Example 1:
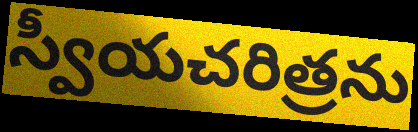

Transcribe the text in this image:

స్వీయచరిత్రను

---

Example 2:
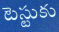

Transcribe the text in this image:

టెస్టుకు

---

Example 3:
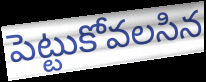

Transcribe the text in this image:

పెట్టుకోవలసిన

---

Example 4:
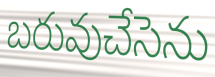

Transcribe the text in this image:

బరువుచేసెను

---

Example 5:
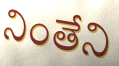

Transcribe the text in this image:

నింతేని